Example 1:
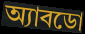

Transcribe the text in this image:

অ্যাবডো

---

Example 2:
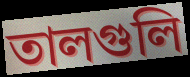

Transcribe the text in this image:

তালগুলি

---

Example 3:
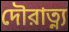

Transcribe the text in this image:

দৌরাত্ন্য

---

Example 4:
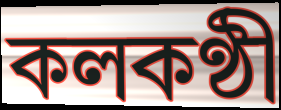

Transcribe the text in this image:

কলকণ্ঠী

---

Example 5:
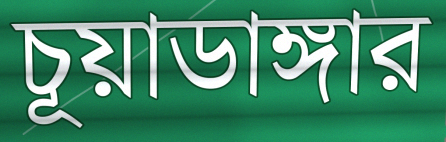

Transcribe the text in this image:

চূয়াডাঙ্গার